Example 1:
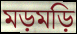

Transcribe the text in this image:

মড়মড়ি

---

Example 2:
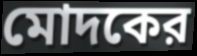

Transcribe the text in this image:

মোদকের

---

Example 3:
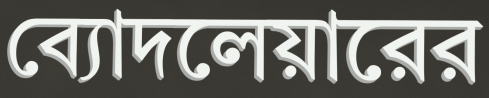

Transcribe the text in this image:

ব্যোদলেয়ারের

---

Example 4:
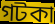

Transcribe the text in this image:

গটকা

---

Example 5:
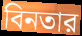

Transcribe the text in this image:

বিনতার